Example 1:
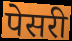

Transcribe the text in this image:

पेसरी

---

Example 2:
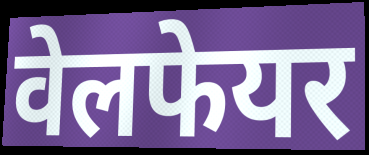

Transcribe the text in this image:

वेलफेयर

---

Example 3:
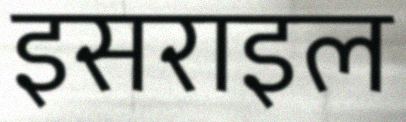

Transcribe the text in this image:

इसराइल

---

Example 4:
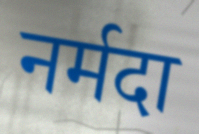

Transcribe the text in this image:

नर्मदा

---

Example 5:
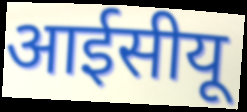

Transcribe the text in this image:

आईसीयू